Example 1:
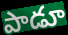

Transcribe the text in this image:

పాడూ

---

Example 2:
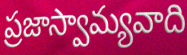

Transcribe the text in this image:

ప్రజాస్వామ్యవాది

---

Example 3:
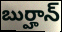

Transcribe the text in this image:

బుర్హాన్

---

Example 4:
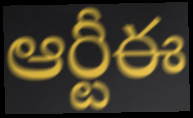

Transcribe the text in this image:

ఆర్టీఈ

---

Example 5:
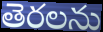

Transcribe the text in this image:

తెరలను